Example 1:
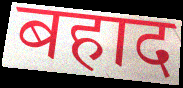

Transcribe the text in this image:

बहाद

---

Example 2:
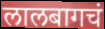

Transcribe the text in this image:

लालबागचं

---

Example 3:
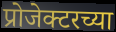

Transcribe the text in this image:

प्रोजेक्टरच्या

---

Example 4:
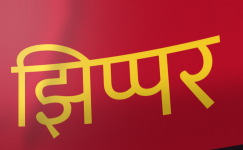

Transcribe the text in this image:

झिप्पर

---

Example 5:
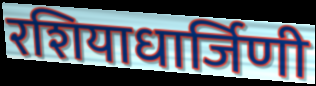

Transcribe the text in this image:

रशियाधार्जिणी